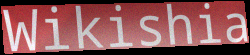
Wikishia